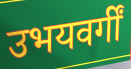
उभयवर्गीं